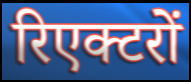
रिएक्टरों